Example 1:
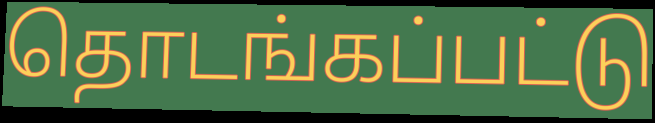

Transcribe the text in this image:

தொடங்கப்பட்டு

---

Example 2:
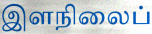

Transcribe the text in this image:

இளநிலைப்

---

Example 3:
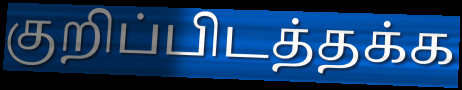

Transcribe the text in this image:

குறிப்பிடத்தக்க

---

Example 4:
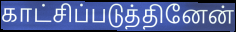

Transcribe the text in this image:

காட்சிப்படுத்தினேன்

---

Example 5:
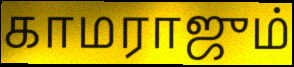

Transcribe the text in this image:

காமராஜும்